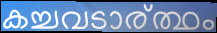
കച്ചവടാര്ത്ഥം